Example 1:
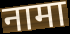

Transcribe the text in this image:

नामा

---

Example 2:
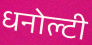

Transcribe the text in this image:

धनोल्‍टी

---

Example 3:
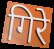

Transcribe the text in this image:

गिरे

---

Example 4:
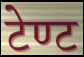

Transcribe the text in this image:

टेण्ट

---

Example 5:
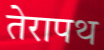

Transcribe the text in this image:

तेरापथ